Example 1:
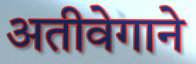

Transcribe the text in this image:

अतीवेगाने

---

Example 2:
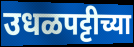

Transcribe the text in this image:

उधळपट्टीच्या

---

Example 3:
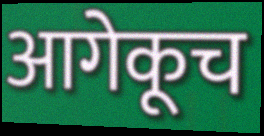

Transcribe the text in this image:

आगेकूच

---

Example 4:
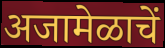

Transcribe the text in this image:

अजामेळाचें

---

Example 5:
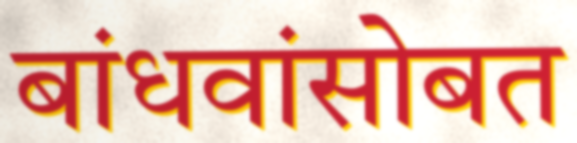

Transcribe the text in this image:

बांधवांसोबत